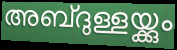
അബ്ദുള്ളയ്ക്കും